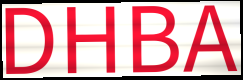
DHBA